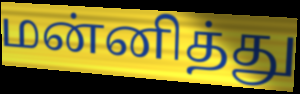
மன்னித்து